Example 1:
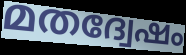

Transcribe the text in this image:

മതദ്വേഷം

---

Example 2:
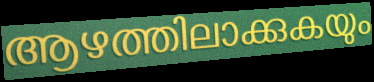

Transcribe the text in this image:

ആഴത്തിലാക്കുകയും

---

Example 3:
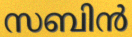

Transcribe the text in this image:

സബിൻ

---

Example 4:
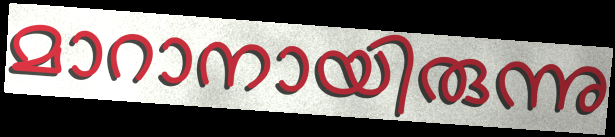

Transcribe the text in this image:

മാറാനായിരുന്നു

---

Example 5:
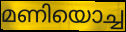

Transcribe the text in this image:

മണിയൊച്ച